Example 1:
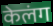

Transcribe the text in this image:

केलंग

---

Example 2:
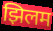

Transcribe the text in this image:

झिलम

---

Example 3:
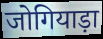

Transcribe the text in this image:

जोगियाड़ा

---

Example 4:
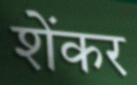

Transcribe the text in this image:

शेंकर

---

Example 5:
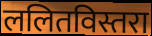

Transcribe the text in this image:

ललितविस्तरा